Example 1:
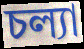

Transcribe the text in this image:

চল্যা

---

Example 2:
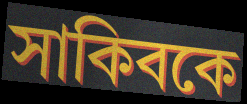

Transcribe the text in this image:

সাকিবকে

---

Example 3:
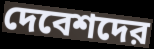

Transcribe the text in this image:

দেবেশদের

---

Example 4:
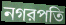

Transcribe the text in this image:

নগরপতি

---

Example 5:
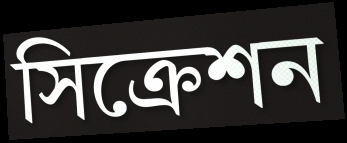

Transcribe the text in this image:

সিক্রেশন